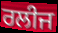
ਰਲੀਜ